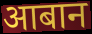
आबान